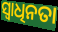
ସ୍ଵାଧିନତା